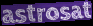
astrosat